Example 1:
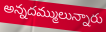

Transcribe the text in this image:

అన్నదమ్ములున్నారు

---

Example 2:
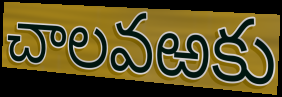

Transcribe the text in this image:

చాలవఱకు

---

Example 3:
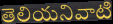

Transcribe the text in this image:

తెలియనివాటి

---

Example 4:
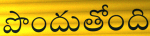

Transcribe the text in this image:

పొందుతోంది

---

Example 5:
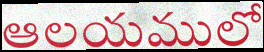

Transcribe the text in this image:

ఆలయములో